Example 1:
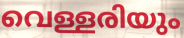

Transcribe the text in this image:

വെള്ളരിയും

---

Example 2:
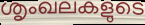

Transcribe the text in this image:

ശൃംഖലകളുടെ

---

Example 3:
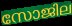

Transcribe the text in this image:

സോജില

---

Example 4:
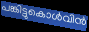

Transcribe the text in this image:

പങ്കിട്ടുകൊൾവിൻ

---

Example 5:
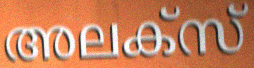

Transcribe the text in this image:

അലക്സ്